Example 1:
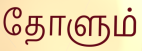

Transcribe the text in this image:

தோளும்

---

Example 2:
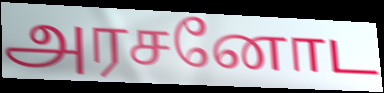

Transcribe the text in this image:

அரசனோட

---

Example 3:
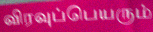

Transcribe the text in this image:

விரவுப்பெயரும்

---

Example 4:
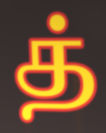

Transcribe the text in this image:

த்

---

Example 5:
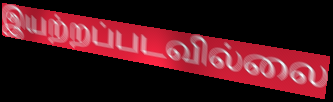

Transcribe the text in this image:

இயற்றப்படவில்லை